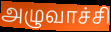
அழுவாச்சி